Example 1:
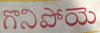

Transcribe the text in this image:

గొనిపోయె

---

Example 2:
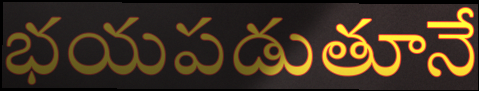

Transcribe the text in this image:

భయపడుతూనే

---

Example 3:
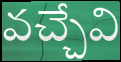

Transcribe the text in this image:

వచ్చేవి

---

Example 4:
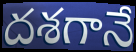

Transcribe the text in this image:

దశగానే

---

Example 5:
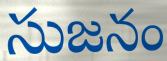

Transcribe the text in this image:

సుజనం